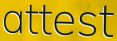
attest